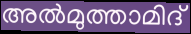
അൽമുത്താമിദ്